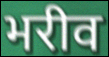
भरीव